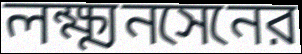
লক্ষ্মনসেনের